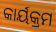
କାର୍ୟକ୍ରମ